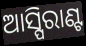
ଆସ୍ପିରାଣ୍ଟ